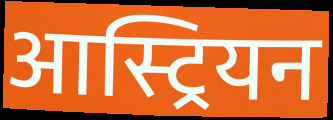
आस्ट्रियन